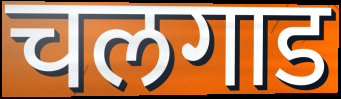
चलगाड